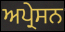
ਅਪ੍ਰੇਸਨ